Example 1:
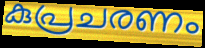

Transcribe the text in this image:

കുപ്രചരണം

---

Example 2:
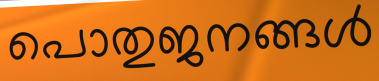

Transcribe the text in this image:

പൊതുജനങ്ങൾ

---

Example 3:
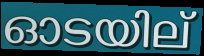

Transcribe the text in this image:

ഓടയില്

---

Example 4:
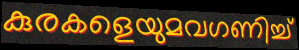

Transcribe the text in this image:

കുരകളെയുമവഗണിച്ച്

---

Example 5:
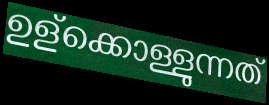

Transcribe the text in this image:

ഉള്ക്കൊള്ളുന്നത്